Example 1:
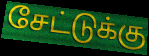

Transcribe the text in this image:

சேட்டுக்கு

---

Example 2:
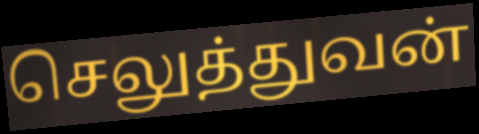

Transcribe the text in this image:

செலுத்துவன்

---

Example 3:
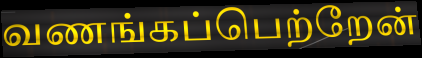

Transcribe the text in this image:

வணங்கப்பெற்றேன்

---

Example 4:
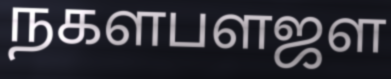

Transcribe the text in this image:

நகளபளஜள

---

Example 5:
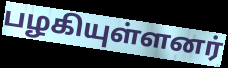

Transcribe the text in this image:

பழகியுள்ளனர்